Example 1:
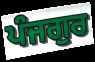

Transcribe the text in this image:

ਪੰਜਗੁਰ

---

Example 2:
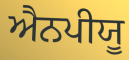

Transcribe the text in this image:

ਐਨਪੀਯੂ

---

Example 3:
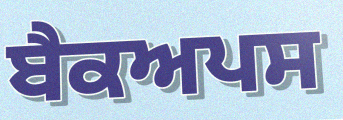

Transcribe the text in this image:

ਬੈਕਅਪਸ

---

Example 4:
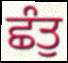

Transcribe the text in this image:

ਛੰਤੁ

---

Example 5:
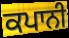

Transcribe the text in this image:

ਕਪਾਨੀ